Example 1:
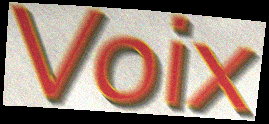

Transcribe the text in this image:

Voix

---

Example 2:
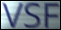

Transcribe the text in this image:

VSF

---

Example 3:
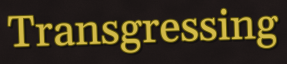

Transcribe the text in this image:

Transgressing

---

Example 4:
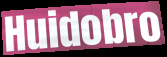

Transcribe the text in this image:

Huidobro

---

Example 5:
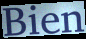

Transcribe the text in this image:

Bien